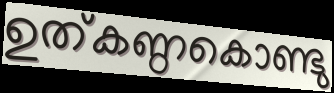
ഉത്കണ്ഠകൊണ്ടു